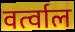
वर्त्वाल